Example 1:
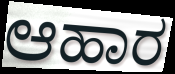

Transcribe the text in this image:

ಆಹಾರ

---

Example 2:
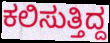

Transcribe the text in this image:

ಕಲಿಸುತ್ತಿದ್ದ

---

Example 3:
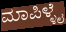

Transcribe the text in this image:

ಮಾಪಿಳ್ಳೈ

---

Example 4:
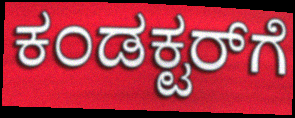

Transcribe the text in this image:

ಕಂಡಕ್ಟರ್‌ಗೆ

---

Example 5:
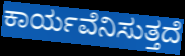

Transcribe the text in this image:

ಕಾರ್ಯವೆನಿಸುತ್ತದೆ